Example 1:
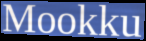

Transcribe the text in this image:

Mookku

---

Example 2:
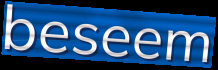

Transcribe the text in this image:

beseem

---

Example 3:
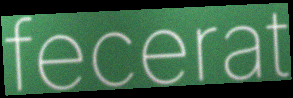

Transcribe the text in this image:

fecerat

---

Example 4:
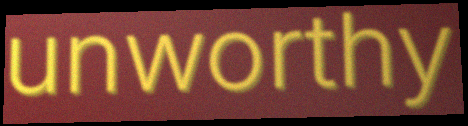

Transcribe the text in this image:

unworthy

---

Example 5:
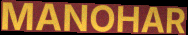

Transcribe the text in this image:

MANOHAR